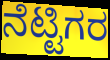
ನೆಟ್ಟಿಗರ